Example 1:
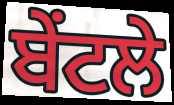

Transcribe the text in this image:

ਬੇਂਟਲੇ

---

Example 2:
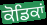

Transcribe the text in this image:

ਕੋਡਿਕਾਂ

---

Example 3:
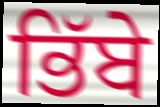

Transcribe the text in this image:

ਭਿੱਬੇ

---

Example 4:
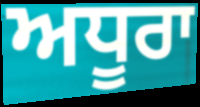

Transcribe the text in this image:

ਅਧੂਰਾ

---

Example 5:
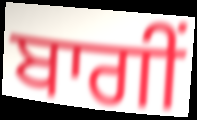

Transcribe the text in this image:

ਬਾਗੀਂ